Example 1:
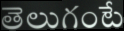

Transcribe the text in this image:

తెలుగంటే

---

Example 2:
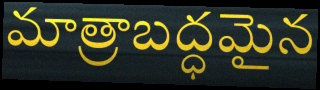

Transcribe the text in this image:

మాత్రాబద్ధమైన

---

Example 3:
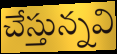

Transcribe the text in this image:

చేస్తున్నవి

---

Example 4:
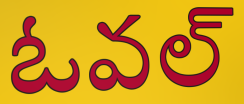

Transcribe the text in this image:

ఓవల్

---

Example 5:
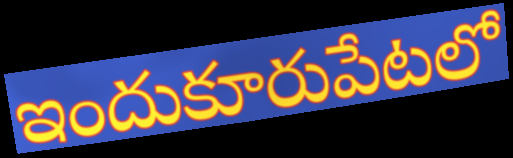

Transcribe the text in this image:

ఇందుకూరుపేటలో